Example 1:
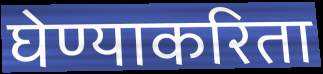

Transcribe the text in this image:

घेण्याकरिता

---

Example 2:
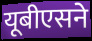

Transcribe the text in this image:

यूबीएसने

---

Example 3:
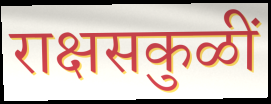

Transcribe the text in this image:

राक्षसकुळीं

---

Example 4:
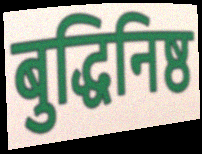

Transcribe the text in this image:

बुद्धिनिष्ठ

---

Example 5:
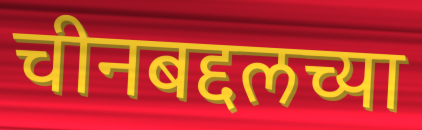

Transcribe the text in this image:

चीनबद्दलच्या